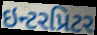
ઇન્ટરપ્રિટર